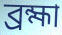
ব্রহ্মা